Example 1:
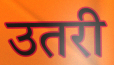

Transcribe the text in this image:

उतरी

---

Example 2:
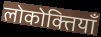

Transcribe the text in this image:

लोकोक्तियाँ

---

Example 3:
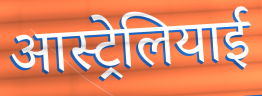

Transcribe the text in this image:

आस्ट्रेलियाई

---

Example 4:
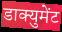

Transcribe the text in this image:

डाक्युमेंट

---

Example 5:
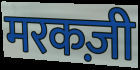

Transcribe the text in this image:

मरकज़ी